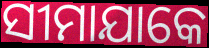
ସୀମାଯାକେ